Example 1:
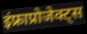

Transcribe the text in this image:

इंफ्राप्रोजेक्ट्स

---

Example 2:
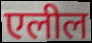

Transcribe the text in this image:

एलील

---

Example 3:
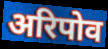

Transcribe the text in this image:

अरिपोव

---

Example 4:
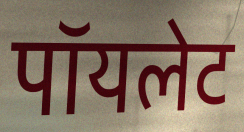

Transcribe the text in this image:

पॉयलेट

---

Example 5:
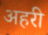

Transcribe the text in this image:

अहरी